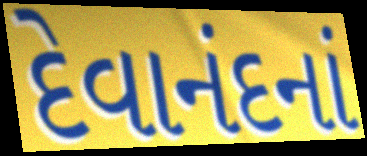
દેવાનંદનાં